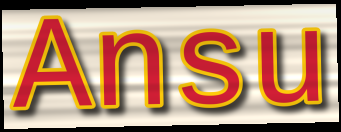
Ansu